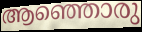
ആഞ്ഞൊരു